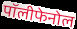
पॉलीफेनोल